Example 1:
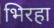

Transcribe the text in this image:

भिरहा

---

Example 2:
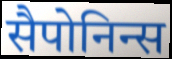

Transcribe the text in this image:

सैपोनिन्स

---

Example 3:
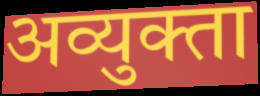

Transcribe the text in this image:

अव्युक्ता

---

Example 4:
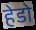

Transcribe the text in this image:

हेडो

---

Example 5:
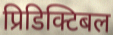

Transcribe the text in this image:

प्रिडिक्टिबल